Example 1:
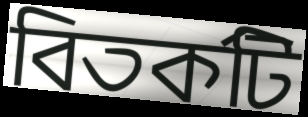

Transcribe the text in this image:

বিতর্কটি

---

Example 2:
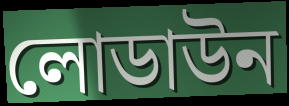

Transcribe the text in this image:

লোডাউন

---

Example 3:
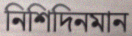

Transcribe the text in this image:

নিশিদিনমান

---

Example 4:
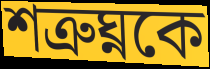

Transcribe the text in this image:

শত্রুঘ্নকে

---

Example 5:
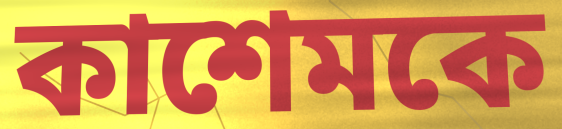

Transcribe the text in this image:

কাশেমকে